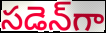
సడెన్‌గా